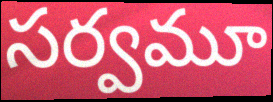
సర్వమూ